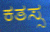
ಕತಸ್ಸ